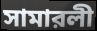
সামারলী